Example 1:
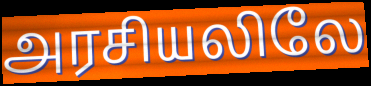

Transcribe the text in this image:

அரசியலிலே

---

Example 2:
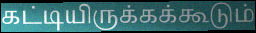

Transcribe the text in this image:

கட்டியிருக்கக்கூடும்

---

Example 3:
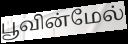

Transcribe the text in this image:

பூவின்மேல்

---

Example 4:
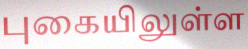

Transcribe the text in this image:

புகையிலுள்ள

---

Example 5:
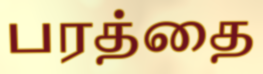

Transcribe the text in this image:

பரத்தை